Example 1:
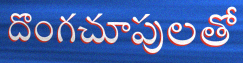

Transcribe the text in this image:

దొంగచూపులతో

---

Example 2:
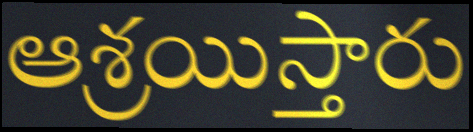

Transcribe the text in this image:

ఆశ్రయిస్తారు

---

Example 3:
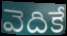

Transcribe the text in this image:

వెదికే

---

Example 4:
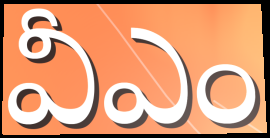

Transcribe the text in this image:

వీఎం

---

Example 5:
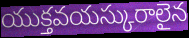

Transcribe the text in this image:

యుక్తవయస్కురాలైన